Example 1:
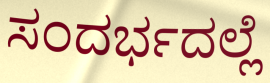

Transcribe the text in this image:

ಸಂದರ್ಭದಲ್ಲೆ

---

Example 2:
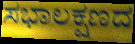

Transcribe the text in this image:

ಸಭಾಲಕ್ಷಣದ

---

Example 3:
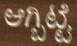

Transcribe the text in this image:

ಆಗ್ಬಿಟ್ಟೆ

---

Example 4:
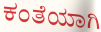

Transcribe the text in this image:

ಕಂತೆಯಾಗಿ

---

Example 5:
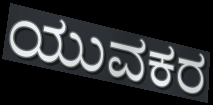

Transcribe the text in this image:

ಯುವಕರ